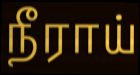
நீராய்